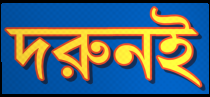
দরুনই